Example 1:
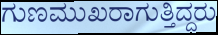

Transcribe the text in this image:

ಗುಣಮುಖರಾಗುತ್ತಿದ್ದರು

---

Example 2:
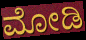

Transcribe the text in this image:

ಮೋಡಿ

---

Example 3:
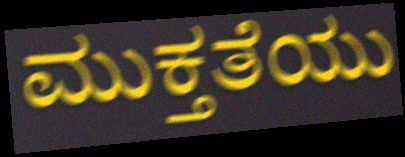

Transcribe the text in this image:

ಮುಕ್ತತೆಯು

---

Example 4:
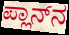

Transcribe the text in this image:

ಪ್ಲಾನ್‌ನ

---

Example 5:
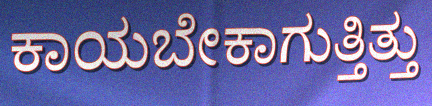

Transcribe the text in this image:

ಕಾಯಬೇಕಾಗುತ್ತಿತ್ತು